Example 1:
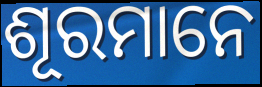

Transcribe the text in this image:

ଶୂରମାନେ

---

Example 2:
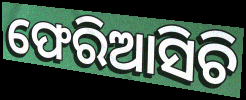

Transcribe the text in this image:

ଫେରିଆସିଚି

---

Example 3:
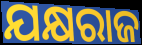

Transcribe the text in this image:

ଯକ୍ଷରାଜ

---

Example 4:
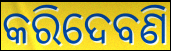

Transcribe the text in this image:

କରିଦେବଣି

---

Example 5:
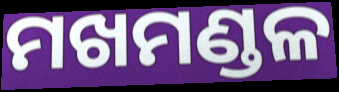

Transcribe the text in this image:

ମଖମଣ୍ଡଳ